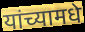
यांच्यामधे